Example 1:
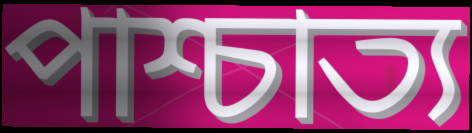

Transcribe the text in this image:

পাশ্চাত্য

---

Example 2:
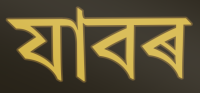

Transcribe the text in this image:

যাবৰ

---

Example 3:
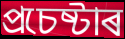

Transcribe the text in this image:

প্ৰচেষ্টাৰ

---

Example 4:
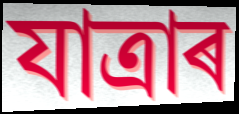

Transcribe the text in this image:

যাত্ৰাৰ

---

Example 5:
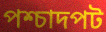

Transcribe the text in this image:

পশ্চাদপট